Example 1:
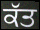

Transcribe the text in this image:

ਕੱਤ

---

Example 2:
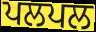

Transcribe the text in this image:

ਪਲਪਲ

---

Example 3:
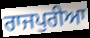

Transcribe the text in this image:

ਰਾਜਪੁਰੀਆ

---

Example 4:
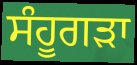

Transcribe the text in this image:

ਸੰਹੂਗੜਾ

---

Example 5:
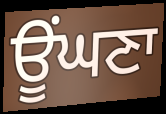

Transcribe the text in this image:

ਊਂਘਣਾ